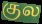
குல